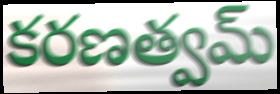
కరణత్వమ్